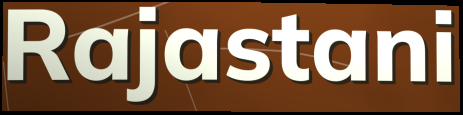
Rajastani